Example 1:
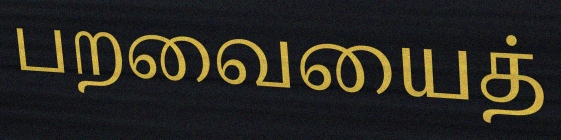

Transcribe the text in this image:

பறவையைத்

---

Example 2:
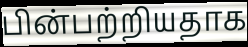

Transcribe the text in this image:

பின்பற்றியதாக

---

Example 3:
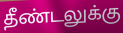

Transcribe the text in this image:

தீண்டலுக்கு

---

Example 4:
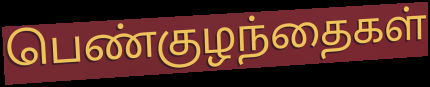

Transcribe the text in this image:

பெண்குழந்தைகள்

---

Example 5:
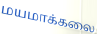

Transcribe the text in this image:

மயமாக்கலை